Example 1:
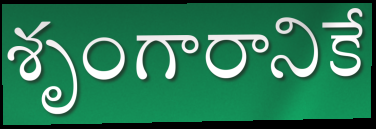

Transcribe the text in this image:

శృంగారానికే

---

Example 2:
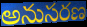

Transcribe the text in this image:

అనుసరణ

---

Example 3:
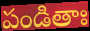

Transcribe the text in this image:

పండితాః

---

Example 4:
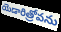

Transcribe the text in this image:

యెడారిత్రోవను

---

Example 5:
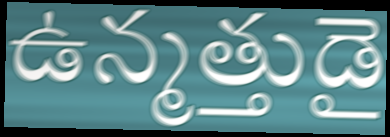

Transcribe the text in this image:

ఉన్మత్తుడై